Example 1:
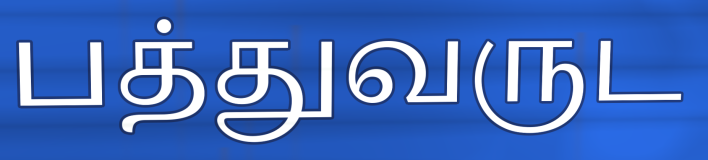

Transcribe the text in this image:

பத்துவருட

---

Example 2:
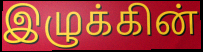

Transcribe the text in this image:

இழுக்கின்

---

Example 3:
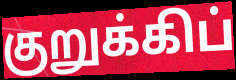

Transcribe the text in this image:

குறுக்கிப்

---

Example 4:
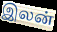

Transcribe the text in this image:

இலன்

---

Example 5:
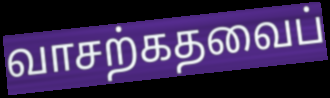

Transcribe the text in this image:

வாசற்கதவைப்